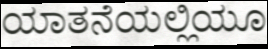
ಯಾತನೆಯಲ್ಲಿಯೂ